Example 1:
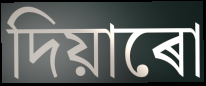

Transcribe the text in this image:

দিয়াৰো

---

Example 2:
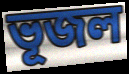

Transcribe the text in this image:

ভূজল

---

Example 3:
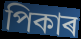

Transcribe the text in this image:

পিকাৰ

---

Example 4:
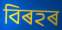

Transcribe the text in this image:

বিৰহৰ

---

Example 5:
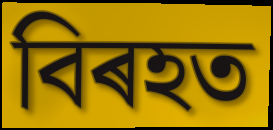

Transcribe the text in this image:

বিৰহত